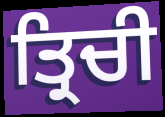
ਤ੍ਰਿਚੀ